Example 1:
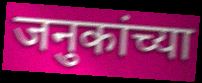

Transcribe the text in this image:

जनुकांच्या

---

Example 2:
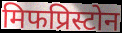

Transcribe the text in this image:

मिफप्रिस्टोन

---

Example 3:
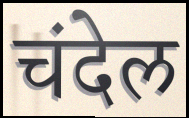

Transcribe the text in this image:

चंदेल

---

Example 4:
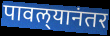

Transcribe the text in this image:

पावल्यानंतर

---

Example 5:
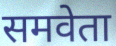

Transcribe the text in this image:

समवेता